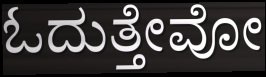
ಓದುತ್ತೇವೋ